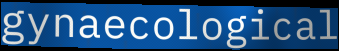
gynaecological